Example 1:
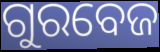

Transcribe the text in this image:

ଗୁରବେଜ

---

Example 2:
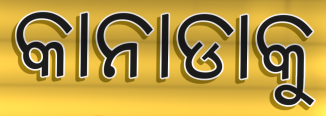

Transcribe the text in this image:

କାନାଡାକୁ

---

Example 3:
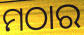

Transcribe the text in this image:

ମଠାର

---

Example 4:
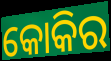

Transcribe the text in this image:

କୋକିର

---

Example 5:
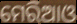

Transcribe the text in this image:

ମେରିଆଓ